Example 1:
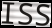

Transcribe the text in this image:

ISS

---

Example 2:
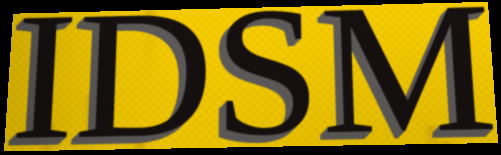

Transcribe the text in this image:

IDSM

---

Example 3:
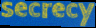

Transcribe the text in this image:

secrecy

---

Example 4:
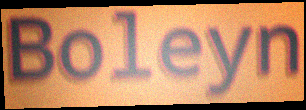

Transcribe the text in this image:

Boleyn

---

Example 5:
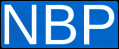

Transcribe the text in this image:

NBP